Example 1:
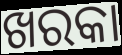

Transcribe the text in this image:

ଖରକା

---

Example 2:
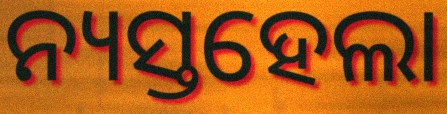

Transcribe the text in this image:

ନ୍ୟସ୍ତହେଲା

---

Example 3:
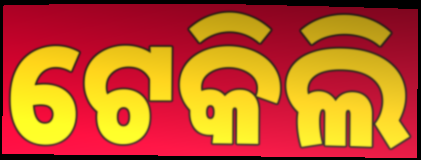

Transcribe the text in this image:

ଟେକିଲି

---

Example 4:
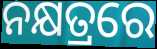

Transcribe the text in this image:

ନକ୍ଷତ୍ରରେ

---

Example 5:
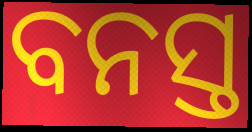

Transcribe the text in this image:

ବନସ୍ତ